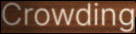
Crowding